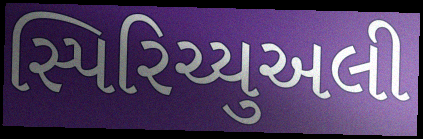
સ્પિરિચ્યુઅલી